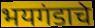
भयगंडाचे